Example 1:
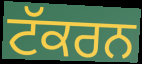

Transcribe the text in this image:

ਟੱਕਰਨ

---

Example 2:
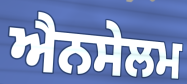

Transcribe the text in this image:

ਐਨਸੇਲਮ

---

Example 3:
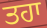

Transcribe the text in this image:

ਤਹਾ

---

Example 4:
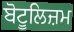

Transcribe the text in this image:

ਬੋਟੂਲਿਜ਼ਮ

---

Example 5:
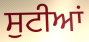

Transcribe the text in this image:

ਸੁਟੀਆਂ